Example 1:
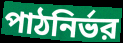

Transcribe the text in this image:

পাঠনির্ভর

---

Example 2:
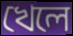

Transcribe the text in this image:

খেলে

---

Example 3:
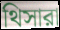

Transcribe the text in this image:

থিসারা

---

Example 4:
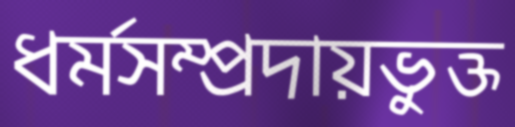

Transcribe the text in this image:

ধর্মসম্প্রদায়ভুক্ত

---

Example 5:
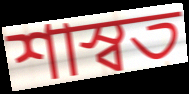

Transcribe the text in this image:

শাস্বত